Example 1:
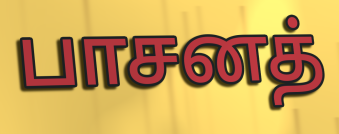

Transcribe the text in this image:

பாசனத்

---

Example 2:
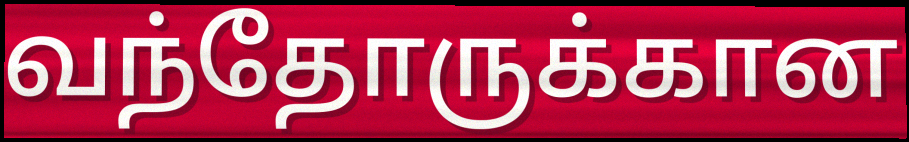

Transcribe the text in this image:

வந்தோருக்கான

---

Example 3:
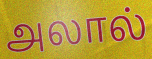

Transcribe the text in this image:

அலால்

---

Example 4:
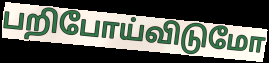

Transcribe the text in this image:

பறிபோய்விடுமோ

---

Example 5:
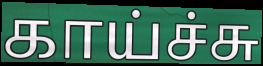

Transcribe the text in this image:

காய்ச்சு